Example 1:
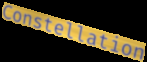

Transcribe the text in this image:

Constellation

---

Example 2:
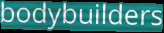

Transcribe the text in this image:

bodybuilders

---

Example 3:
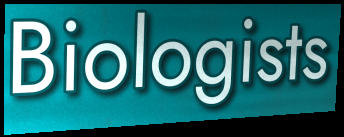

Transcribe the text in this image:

Biologists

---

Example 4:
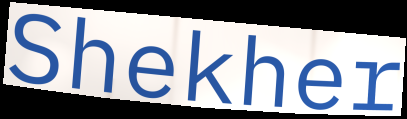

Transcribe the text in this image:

Shekher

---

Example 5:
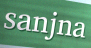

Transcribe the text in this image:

sanjna